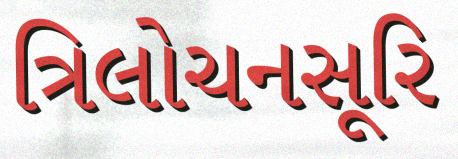
ત્રિલોચનસૂરિ